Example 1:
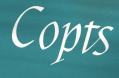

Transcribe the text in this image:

Copts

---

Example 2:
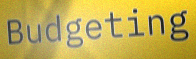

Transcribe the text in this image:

Budgeting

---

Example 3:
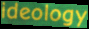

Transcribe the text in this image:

ideology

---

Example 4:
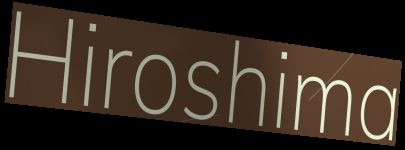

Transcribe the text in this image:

Hiroshima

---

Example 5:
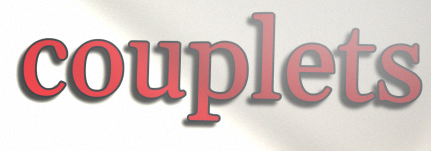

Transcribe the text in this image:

couplets